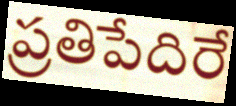
ప్రతిపేదిరే